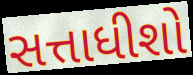
સત્તાધીશો